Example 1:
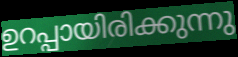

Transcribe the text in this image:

ഉറപ്പായിരിക്കുന്നു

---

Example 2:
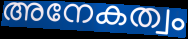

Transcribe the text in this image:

അനേകത്വം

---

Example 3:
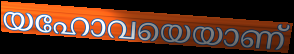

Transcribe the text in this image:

യഹോവയെയാണ്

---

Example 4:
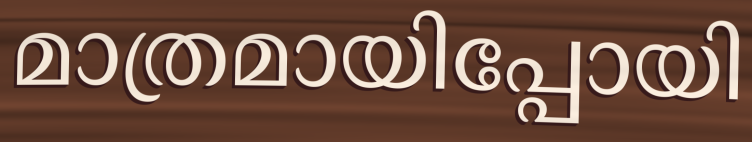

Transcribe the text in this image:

മാത്രമായിപ്പോയി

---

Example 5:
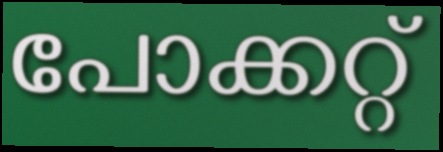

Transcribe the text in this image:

പോക്കറ്റ്